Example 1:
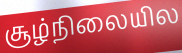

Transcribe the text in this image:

சூழ்நிலையில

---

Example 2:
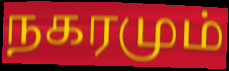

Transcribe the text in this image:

நகரமும்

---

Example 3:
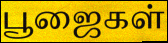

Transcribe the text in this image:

பூஜைகள்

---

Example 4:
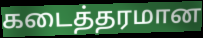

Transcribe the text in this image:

கடைத்தரமான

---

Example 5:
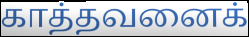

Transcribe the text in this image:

காத்தவனைக்